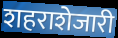
शहराशेजारी